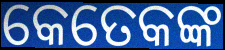
କେତେକଙ୍କ